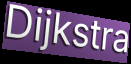
Dijkstra